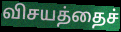
விசயத்தைச்